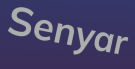
Senyar